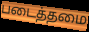
படைத்தமை